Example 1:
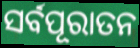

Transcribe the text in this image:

ସର୍ବପୂରାତନ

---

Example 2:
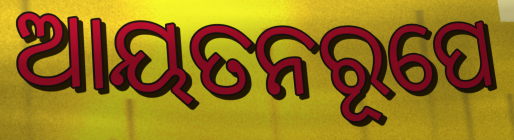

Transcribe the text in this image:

ଆୟତନରୂପେ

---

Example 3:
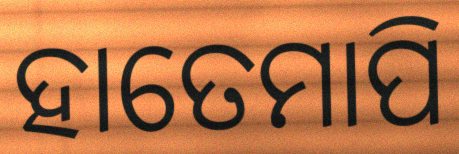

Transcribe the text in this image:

ହାତେମାପି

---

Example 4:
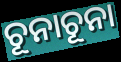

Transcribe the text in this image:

ଚୂନାଚୂନା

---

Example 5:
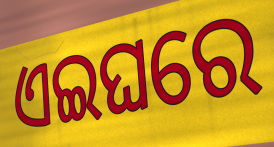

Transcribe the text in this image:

ଏଇଘରେ